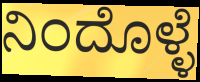
ನಿಂದೊಳ್ಳೆ